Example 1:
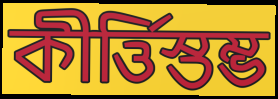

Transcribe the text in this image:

কীর্ত্তিস্তম্ভ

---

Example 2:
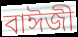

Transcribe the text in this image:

বাঈজী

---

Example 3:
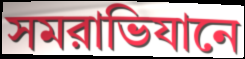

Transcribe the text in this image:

সমরাভিযানে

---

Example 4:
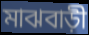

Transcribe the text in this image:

মাঝবাড়ী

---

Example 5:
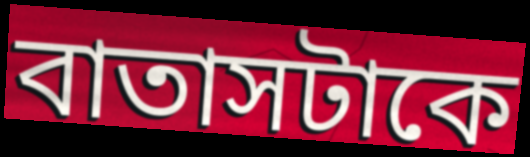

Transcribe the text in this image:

বাতাসটাকে